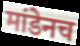
मांडेनच